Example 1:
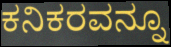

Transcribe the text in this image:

ಕನಿಕರವನ್ನೂ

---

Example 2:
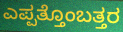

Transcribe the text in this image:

ಎಪ್ಪತ್ತೊಂಬತ್ತರ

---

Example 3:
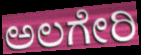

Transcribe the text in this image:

ಅಲಗೇರಿ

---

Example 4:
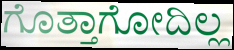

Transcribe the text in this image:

ಗೊತ್ತಾಗೋದಿಲ್ಲ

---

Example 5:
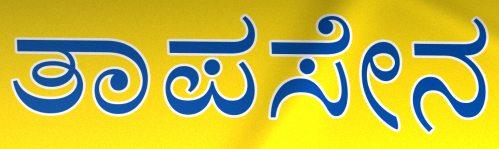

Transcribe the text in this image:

ತಾಪಸೇನ